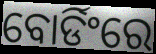
ବୋର୍ଡିଂରେ